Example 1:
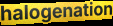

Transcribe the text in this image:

halogenation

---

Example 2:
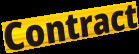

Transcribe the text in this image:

Contract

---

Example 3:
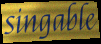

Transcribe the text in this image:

singable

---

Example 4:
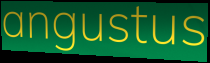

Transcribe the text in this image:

angustus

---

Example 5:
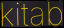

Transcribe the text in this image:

kitab